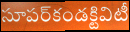
సూపర్‌కండక్టివిటీ